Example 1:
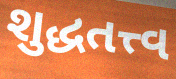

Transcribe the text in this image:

શુદ્ધતત્ત્વ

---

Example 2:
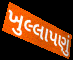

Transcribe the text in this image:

ખુલ્લાપણું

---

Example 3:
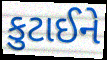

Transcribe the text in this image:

કુટાઈને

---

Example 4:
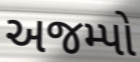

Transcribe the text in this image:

અજમ્પો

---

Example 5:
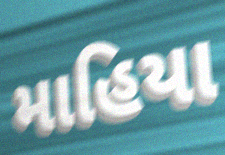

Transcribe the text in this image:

માહિયા